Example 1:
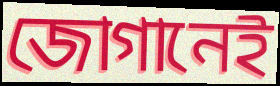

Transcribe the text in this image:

জোগানেই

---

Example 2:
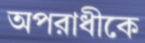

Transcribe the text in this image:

অপরাধীকে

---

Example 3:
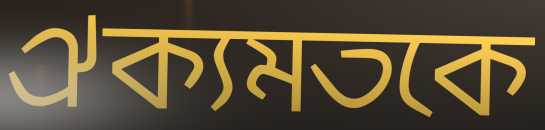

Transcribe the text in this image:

ঐক্যমতকে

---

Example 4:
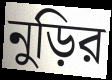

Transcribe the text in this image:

নুড়ির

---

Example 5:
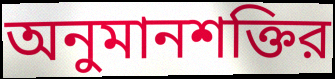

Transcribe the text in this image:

অনুমানশক্তির